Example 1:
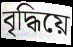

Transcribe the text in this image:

বৃদ্ধিয়ে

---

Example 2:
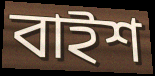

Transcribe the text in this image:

বাইশ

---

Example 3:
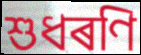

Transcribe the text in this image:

শুধৰণি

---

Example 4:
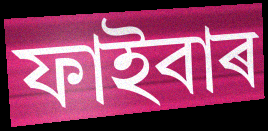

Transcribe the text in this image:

ফাইবাৰ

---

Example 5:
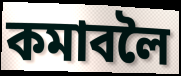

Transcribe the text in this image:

কমাবলৈ